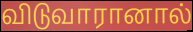
விடுவாரானால்